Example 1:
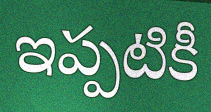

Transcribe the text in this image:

ఇప్పటికీ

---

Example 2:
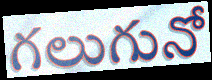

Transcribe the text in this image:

గలుగునో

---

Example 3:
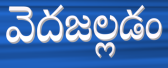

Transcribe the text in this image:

వెదజల్లడం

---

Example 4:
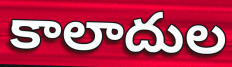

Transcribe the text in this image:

కాలాదుల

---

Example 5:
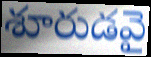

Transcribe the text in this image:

శూరుడవై